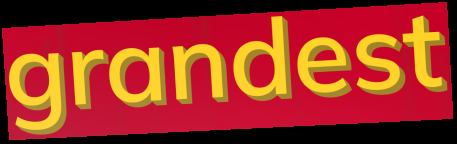
grandest